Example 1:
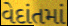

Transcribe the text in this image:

વેદાંતમાં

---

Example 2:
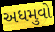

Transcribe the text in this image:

અધમુવો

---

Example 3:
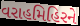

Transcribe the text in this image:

વરાહમિહિરને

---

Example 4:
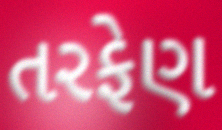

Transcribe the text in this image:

તરફેણ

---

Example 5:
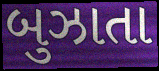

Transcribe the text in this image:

બુઝાતા